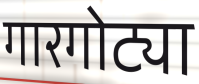
गारगोट्या